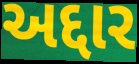
અદ્દાર